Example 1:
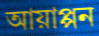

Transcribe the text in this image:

আয়াপ্পন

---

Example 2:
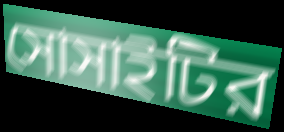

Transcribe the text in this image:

সোসাইটির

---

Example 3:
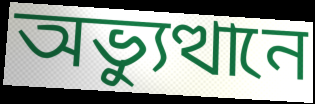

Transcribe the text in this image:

অভ্যুত্থানে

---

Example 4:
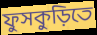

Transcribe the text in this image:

ফুসকুড়িতে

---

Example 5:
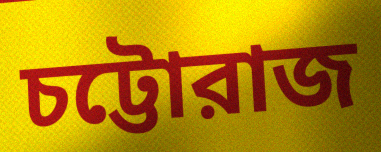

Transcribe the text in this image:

চট্টোরাজ